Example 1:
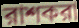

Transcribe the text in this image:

রাশকরা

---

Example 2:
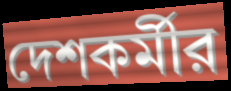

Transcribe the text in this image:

দেশকর্মীর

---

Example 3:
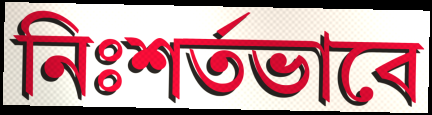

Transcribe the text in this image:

নিঃশর্তভাবে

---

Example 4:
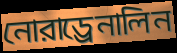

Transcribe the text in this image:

নোরাড্রেনালিন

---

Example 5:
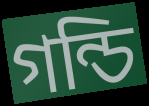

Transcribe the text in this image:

গন্ডি